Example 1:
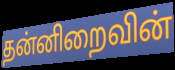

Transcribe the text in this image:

தன்னிறைவின்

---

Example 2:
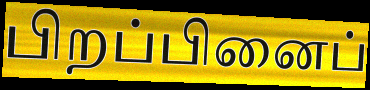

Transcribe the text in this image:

பிறப்பினைப்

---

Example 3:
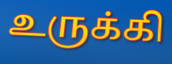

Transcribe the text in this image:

உருக்கி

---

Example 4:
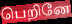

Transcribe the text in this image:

பெறினே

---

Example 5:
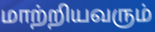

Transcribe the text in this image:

மாற்றியவரும்